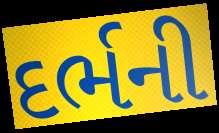
દર્ભની